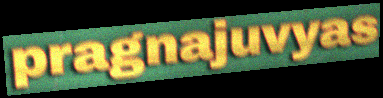
pragnajuvyas